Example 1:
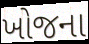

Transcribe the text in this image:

ખોજના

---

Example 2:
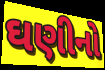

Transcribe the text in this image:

ઘણીનો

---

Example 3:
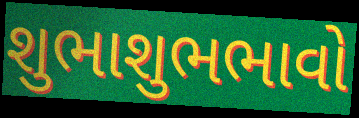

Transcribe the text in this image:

શુભાશુભભાવો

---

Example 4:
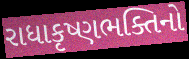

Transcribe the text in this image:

રાધાકૃષ્ણભક્તિનો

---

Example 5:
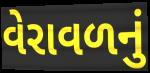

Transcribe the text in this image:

વેરાવળનું